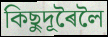
কিছুদূৰৈলৈ